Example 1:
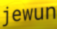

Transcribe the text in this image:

jewun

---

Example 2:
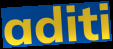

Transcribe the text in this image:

aditi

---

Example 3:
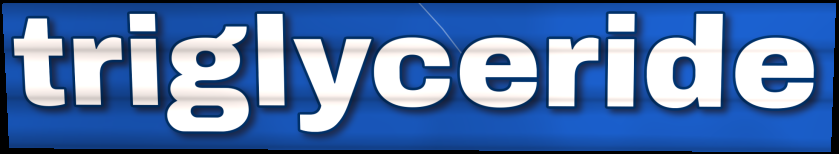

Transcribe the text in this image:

triglyceride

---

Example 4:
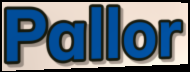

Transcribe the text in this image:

Pallor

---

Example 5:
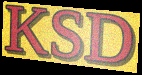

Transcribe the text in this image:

KSD